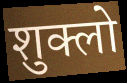
शुक्लो